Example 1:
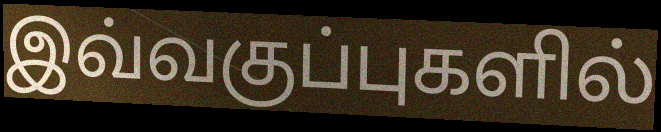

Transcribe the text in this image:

இவ்வகுப்புகளில்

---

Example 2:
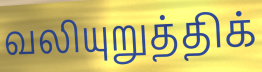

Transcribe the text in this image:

வலியுறுத்திக்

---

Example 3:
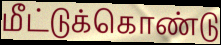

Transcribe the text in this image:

மீட்டுக்கொண்டு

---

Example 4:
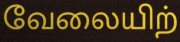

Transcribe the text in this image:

வேலையிற்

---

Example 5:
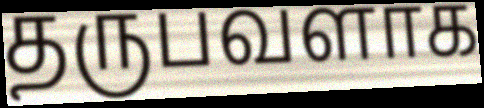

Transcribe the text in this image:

தருபவளாக